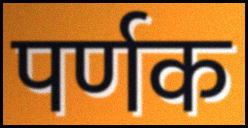
पर्णक